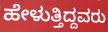
ಹೇಳುತ್ತಿದ್ದವರು